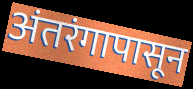
अंतरंगापासून